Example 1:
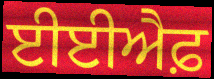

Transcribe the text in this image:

ਈਈਐਫ਼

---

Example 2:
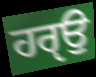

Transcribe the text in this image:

ਹਰੵਉ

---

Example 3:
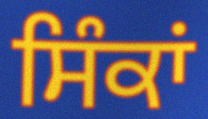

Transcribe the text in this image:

ਸਿੰਕਾਂ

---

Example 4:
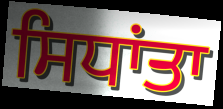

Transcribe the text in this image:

ਸਿਧਾਂਤਾ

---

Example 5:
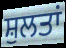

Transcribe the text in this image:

ਸ਼ੁਲਤਾਂ